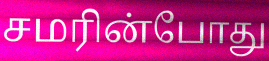
சமரின்போது